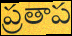
ప్రతాప